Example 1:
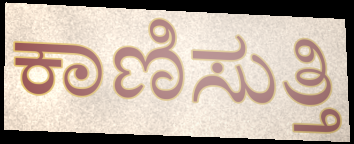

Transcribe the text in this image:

ಕಾಣಿಸುತ್ತಿ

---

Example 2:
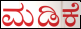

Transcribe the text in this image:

ಮಡಿಕೆ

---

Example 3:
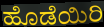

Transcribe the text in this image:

ಹೊಡೆಯಿರಿ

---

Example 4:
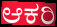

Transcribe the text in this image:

ಆಕರಿ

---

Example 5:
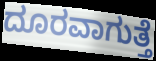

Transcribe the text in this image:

ದೂರವಾಗುತ್ತೆ